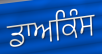
ਡਾਅਕਿੰਸ